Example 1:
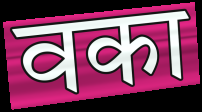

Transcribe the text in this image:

वका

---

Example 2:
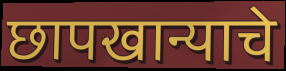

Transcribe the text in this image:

छापखान्याचे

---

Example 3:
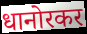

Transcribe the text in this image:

धानोरकर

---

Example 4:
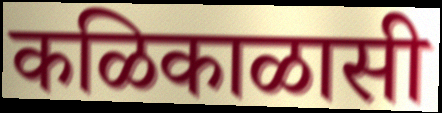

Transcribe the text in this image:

कळिकाळासी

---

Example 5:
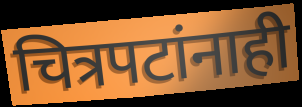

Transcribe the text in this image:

चित्रपटांनाही